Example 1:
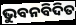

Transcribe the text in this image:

ଭୁବନବିଦିତ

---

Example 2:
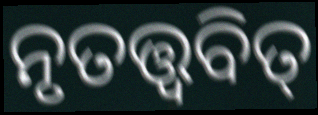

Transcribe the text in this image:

ନୃତତ୍ତ୍ୱବିତ୍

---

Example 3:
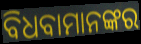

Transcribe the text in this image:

ବିଧବାମାନଙ୍କର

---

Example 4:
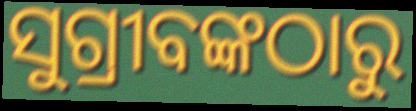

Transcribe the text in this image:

ସୁଗ୍ରୀବଙ୍କଠାରୁ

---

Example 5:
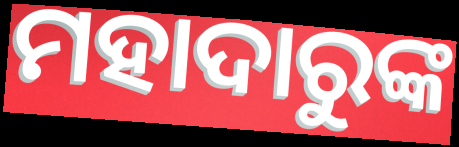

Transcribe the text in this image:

ମହାଦାରୁଙ୍କ